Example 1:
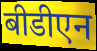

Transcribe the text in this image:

बीडीएन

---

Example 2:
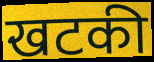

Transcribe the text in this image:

खटकी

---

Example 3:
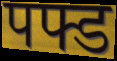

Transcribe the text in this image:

पफ्ड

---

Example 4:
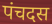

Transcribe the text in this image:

पंचदस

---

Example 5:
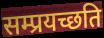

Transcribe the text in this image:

सम्प्रयच्छति